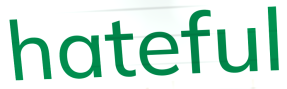
hateful